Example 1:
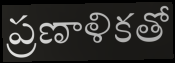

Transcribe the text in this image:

ప్రణాళికతో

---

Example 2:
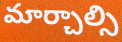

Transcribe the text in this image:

మార్చాల్సి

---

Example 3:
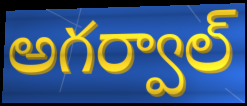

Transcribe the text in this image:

అగర్వాల్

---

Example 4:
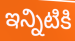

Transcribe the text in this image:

ఇన్నిటికి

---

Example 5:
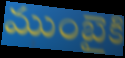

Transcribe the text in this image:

ముంబైకి